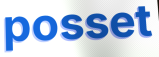
posset